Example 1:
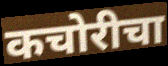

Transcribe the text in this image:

कचोरीचा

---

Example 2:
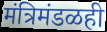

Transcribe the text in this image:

मंत्रिमंडळही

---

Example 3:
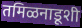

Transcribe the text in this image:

तमिळनाडूशी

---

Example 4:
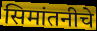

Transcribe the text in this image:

सिमांतनीचे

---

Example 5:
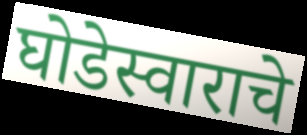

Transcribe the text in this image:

घोडेस्वाराचे